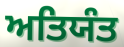
ਅਤਿਯੰਤ